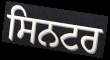
ਸਿਨਟਰ